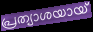
പ്രത്യാശയായ്